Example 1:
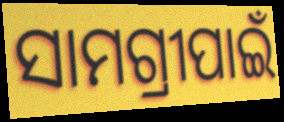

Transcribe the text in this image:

ସାମଗ୍ରୀପାଇଁ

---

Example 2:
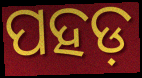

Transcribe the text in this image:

ପହଡ଼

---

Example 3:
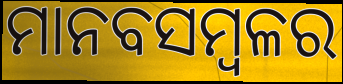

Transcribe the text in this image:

ମାନବସମ୍ବଳର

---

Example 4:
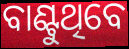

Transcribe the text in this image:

ବାଣ୍ଟୁଥିବେ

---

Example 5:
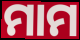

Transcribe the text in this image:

ମାମ